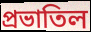
প্রভাতিল